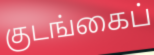
குடங்கைப்